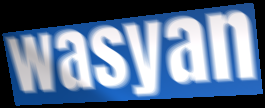
wasyan